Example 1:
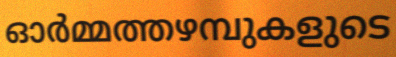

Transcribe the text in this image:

ഓർമ്മത്തഴമ്പുകളുടെ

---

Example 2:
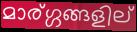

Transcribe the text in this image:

മാര്ഗ്ഗങ്ങളില്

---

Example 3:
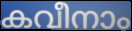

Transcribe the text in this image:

കവീനാം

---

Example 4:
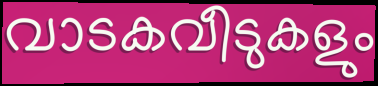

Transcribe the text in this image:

വാടകവീടുകളും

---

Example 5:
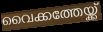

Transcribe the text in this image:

വൈക്കത്തേയ്ക്ക്